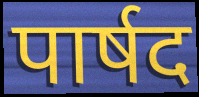
पार्षद